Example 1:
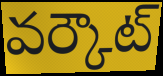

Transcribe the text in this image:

వర్కౌట్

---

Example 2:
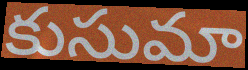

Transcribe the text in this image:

కుసుమా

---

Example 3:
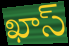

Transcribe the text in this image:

ఖాస్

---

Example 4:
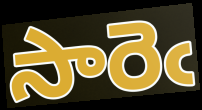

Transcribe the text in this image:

సారెఁ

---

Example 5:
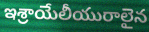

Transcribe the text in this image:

ఇశ్రాయేలీయురాలైన